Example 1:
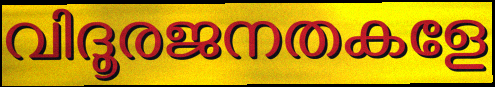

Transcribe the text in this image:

വിദൂരജനതകളേ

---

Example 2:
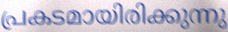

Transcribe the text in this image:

പ്രകടമായിരിക്കുന്നു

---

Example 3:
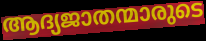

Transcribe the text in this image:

ആദ്യജാതന്മാരുടെ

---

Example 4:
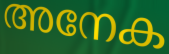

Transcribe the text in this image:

അനേക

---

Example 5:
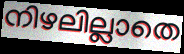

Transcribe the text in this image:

നിഴലില്ലാതെ